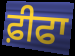
ਫ਼ੀਫਾ